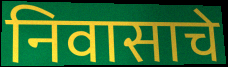
निवासाचे